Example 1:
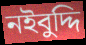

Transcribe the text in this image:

নইবুদ্দি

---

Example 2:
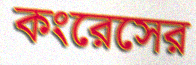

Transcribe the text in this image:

কংরেসের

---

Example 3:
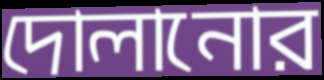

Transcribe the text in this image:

দোলানোর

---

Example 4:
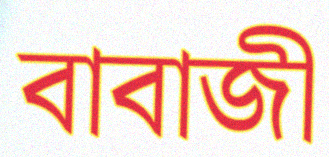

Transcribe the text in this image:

বাবাজী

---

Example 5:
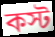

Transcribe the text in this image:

কস্ট